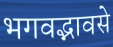
भगवद्भावसे